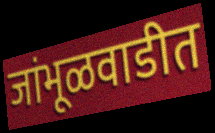
जांभूळवाडीत